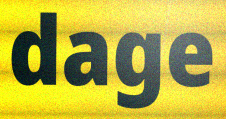
dage